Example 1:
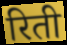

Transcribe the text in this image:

रिती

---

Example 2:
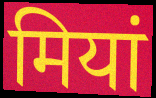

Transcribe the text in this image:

मियां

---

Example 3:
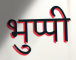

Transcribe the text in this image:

भुप्पी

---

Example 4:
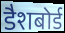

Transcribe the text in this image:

डैशबोर्ड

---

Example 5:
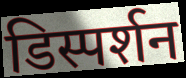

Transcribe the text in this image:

डिस्पर्शन